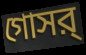
গোসর্